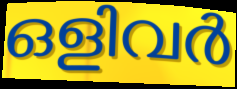
ഒളിവർ